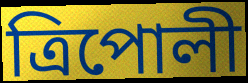
ত্রিপোলী